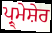
ਪ੍ਰ੍ਮੇਸ਼ੇਰ